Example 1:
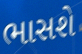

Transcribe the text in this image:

ભાસશે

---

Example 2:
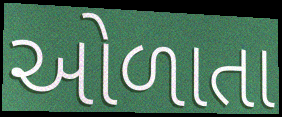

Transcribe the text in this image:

ઓળાતા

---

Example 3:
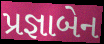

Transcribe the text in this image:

પ્રજ્ઞાબેન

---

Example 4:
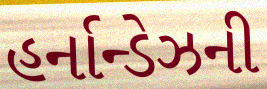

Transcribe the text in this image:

હર્નાન્ડેઝની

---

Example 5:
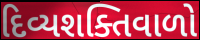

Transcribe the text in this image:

દિવ્યશક્તિવાળો